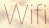
Wifi